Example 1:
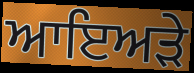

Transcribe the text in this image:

ਆਇਅੜੇ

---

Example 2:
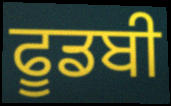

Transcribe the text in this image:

ਫੂਡਬੀ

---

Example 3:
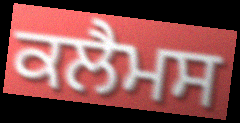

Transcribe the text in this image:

ਕਲੈਮਸ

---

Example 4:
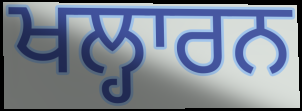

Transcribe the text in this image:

ਖਲ੍ਹਾਰਨ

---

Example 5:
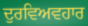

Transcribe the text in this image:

ਦੁਰਵਿਅਵਹਾਰ